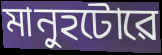
মানুহটোৱে